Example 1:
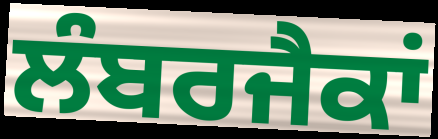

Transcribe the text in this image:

ਲੰਬਰਜੈਕਾਂ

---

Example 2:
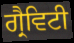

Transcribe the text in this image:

ਗ੍ਰੈਵਿਟੀ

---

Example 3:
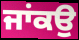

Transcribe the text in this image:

ਜਾਂਕਉ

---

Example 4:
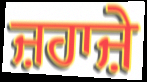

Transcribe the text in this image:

ਜ਼ਹਾਜ਼ੇ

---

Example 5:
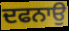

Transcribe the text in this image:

ਦਫਨਾਉ